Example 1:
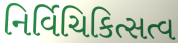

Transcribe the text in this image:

નિર્વિચિકિત્સત્વ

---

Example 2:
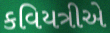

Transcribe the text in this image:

કવિયત્રીએ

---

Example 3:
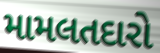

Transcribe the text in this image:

મામલતદારો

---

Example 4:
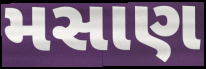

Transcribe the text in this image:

મસાણ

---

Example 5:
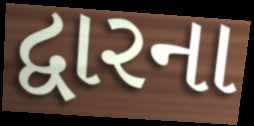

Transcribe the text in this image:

દ્વારના